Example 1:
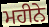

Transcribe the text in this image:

ਮਹੀਨੇ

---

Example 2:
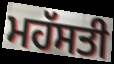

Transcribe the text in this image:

ਮਹੱਸਤੀ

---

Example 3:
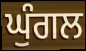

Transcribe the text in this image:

ਘੁੰਗਲ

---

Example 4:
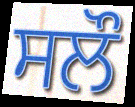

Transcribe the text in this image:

ਸਲੌ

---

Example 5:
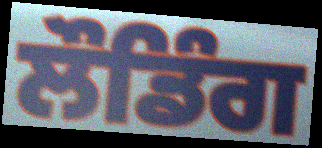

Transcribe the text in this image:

ਲੌਡਿੰਗ